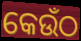
କେଉଁଠ